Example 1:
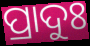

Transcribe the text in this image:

ପ୍ରାଦୁଃ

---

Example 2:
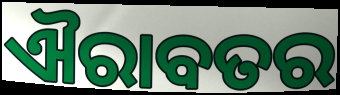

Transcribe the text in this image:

ଐରାବତର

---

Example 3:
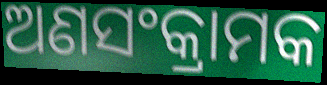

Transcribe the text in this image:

ଅଣସଂକ୍ରାମକ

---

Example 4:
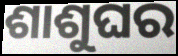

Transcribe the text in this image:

ଶାଶୁଘର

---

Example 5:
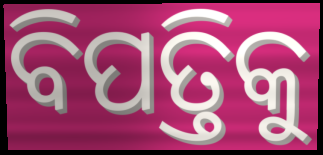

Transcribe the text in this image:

ବିପତ୍ତିକୁ